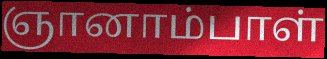
ஞானாம்பாள்